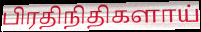
பிரதிநிதிகளாய்